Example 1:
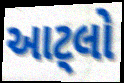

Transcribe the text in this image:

આટ્લો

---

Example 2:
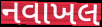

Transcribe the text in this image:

નવાખલ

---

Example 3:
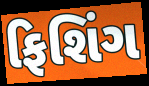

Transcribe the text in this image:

ફિશિંગ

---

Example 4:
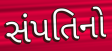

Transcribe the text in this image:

સંપતિનો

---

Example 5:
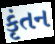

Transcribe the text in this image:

કૃંતન